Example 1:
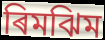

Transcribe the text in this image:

ৰিমঝিম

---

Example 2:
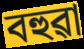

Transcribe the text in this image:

বহুৱা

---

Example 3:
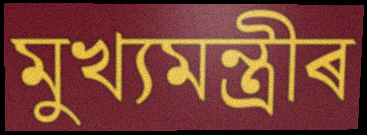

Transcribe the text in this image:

মুখ্যমন্ত্ৰীৰ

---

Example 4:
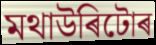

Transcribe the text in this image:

মথাউৰিটোৰ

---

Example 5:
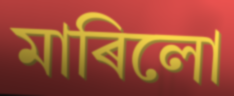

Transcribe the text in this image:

মাৰিলো